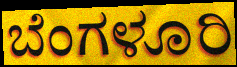
ಬೆಂಗಳೂರಿ